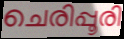
ചെരിപ്പൂരി